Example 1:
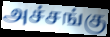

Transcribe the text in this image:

அச்சங்கு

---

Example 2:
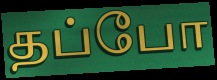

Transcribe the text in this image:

தப்போ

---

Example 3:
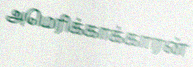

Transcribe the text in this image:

அமெரிக்காக்காரன்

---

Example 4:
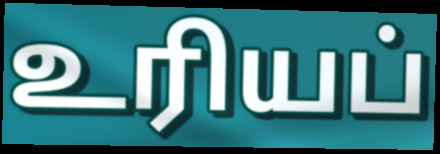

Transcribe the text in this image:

உரியப்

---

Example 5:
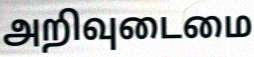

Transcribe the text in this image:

அறிவுடைமை